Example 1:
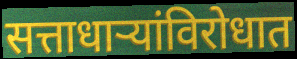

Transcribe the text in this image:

सत्ताधाऱ्यांविरोधात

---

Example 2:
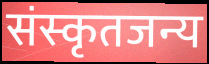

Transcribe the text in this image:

संस्कृतजन्य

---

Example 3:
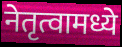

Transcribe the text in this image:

नेतृत्वामध्ये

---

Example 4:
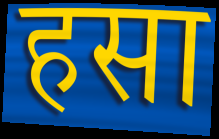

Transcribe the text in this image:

हसा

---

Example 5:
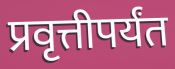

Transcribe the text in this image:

प्रवृत्तीपर्यंत